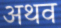
अथव